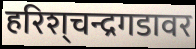
हरिश्चन्द्रगडावर